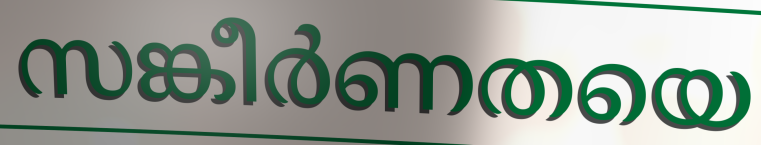
സങ്കീർണതയെ